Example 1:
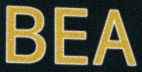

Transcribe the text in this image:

BEA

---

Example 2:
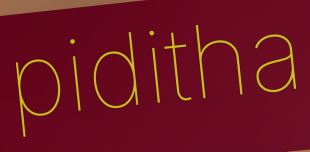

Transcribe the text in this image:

piditha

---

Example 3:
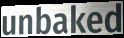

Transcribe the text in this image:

unbaked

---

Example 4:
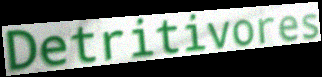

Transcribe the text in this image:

Detritivores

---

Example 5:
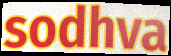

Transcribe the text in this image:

sodhva